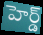
హెర్డ్